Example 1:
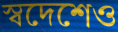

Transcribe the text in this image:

স্বদেশেও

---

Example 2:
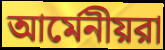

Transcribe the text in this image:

আর্মেনীয়রা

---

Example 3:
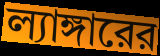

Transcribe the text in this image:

ল্যাঙ্গারের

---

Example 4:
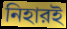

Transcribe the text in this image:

নিহারই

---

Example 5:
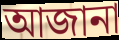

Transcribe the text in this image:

আজানা